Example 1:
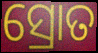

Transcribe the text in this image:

ସ୍ରୋତ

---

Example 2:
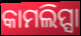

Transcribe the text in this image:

କାମଲିପ୍ସା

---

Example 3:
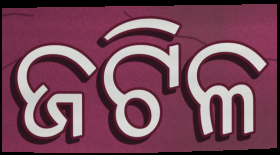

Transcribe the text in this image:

ଜଟିଳ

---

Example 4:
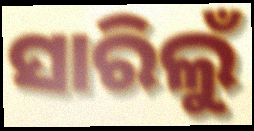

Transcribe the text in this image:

ସାରିଲୁଁ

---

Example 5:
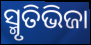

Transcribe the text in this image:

ସ୍ମୃତିଭିଜା